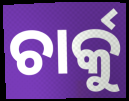
ଚାର୍କୁ